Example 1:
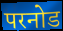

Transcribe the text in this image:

परनोड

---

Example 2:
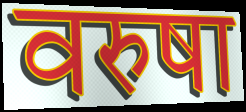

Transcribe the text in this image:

वरुषा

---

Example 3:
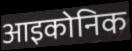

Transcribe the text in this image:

आइकोनिक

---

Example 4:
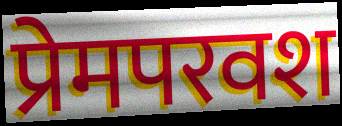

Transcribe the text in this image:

प्रेमपरवश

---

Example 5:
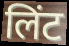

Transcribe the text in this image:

लिंट